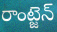
రాంట్జెన్